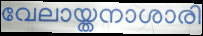
വേലായ്തനാശാരി